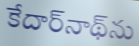
కేదార్‌నాథ్‌ను